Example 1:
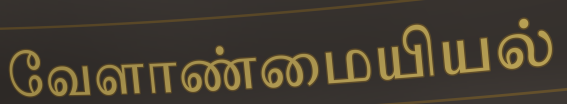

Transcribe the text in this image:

வேளாண்மையியல்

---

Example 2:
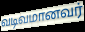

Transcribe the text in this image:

வடிவமானவர்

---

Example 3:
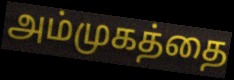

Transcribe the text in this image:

அம்முகத்தை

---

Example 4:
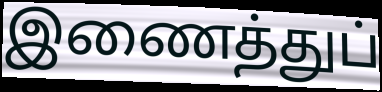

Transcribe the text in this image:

இணைத்துப்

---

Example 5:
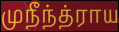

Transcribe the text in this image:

முநீந்த்ராய